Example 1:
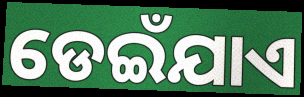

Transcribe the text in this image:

ଡେଇଁଯାଏ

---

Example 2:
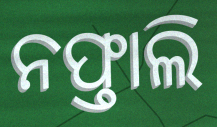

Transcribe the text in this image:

ନଫ୍ତାଲି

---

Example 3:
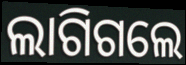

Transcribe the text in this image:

ଲାଗିଗଲେ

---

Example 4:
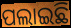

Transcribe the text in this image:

ପଲାଇଛି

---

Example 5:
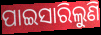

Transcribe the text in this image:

ପାଇସାରିଲୁଣି